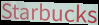
Starbucks